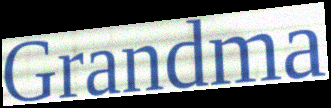
Grandma